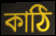
কাঠি